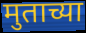
मुताच्या